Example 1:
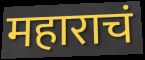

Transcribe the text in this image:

महाराचं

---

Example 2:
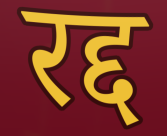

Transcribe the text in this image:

रद्द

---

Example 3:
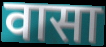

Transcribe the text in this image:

वासा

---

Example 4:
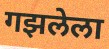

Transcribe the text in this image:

गझलेला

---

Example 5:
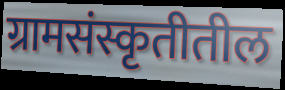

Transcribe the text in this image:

ग्रामसंस्कृतीतील